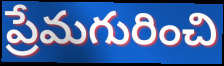
ప్రేమగురించి